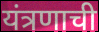
यंत्रणाची